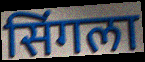
सिंगला